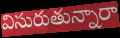
విసురుతున్నారా